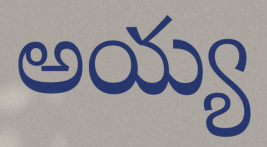
అయ్య